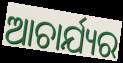
ଆଚାର୍ଯ୍ୟର